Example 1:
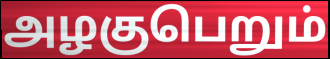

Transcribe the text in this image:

அழகுபெறும்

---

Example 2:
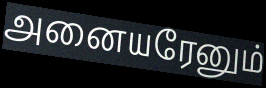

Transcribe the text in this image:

அனையரேனும்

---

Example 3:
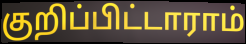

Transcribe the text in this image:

குறிப்பிட்டாராம்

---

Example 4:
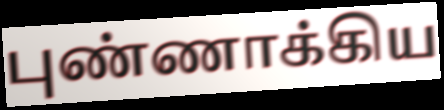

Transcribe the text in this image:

புண்ணாக்கிய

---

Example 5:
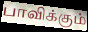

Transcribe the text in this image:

பாவிக்கும்